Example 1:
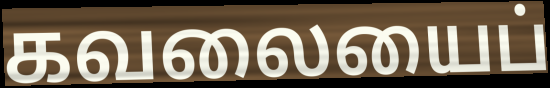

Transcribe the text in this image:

கவலையைப்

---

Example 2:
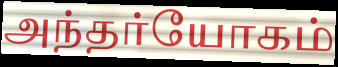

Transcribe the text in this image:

அந்தர்யோகம்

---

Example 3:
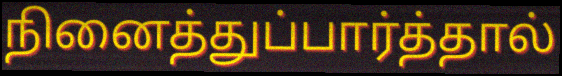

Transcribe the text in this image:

நினைத்துப்பார்த்தால்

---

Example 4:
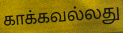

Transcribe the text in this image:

காக்கவல்லது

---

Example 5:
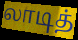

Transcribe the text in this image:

லாடித்